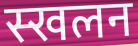
स्खलन